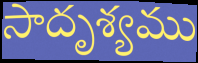
సాదృశ్యము